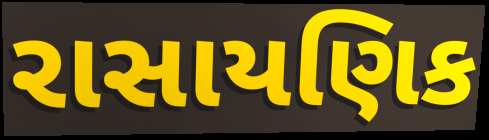
રાસાયણિક